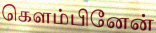
கெளம்பினேன்